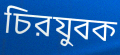
চিরযুবক